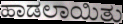
ಹಾಡಲಾಯಿತು